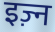
इज़्न